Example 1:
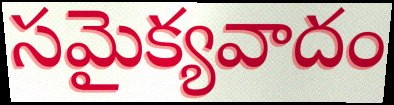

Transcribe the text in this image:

సమైక్యవాదం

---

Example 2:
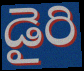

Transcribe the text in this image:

డైరి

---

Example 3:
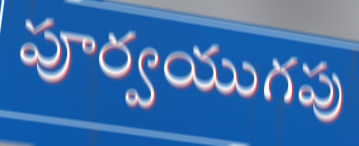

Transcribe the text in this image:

పూర్వయుగపు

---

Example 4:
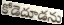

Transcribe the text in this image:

కోడెదూడను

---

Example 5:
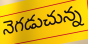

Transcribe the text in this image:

నెగడుచున్న